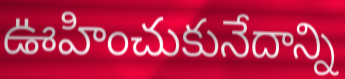
ఊహించుకునేదాన్ని